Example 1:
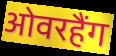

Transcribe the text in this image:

ओवरहैंग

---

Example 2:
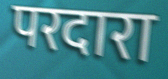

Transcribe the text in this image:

परदारा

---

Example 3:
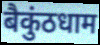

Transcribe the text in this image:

बैकुंठधाम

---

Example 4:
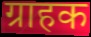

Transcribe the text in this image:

ग्राहक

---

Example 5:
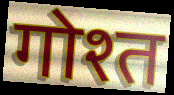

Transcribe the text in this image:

गोश्त